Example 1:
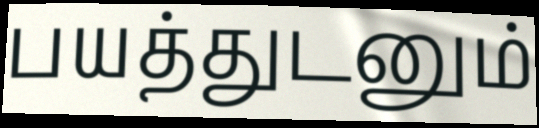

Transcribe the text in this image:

பயத்துடனும்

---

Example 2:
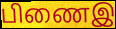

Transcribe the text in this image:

பிணைஇ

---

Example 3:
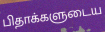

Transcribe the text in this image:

பிதாக்களுடைய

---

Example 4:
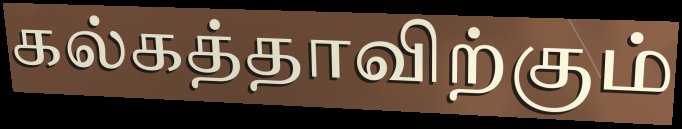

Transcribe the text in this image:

கல்கத்தாவிற்கும்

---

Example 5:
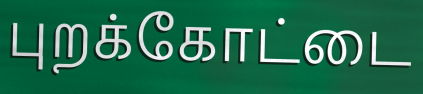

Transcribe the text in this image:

புறக்கோட்டை